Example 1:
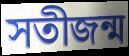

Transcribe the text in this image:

সতীজন্ম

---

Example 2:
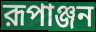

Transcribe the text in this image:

রূপাঞ্জন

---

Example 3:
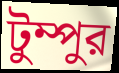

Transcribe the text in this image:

টুম্পুর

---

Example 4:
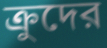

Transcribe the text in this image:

ক্রুদের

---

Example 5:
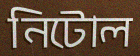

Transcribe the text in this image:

নিটোল